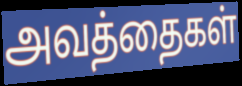
அவத்தைகள்